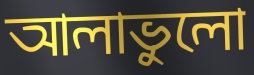
আলাভুলো